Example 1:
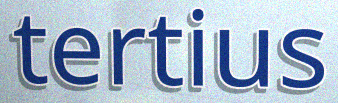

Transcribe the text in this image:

tertius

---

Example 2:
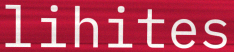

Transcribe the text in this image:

lihites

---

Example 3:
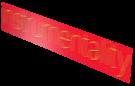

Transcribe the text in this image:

instrumentality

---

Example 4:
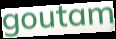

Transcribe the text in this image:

goutam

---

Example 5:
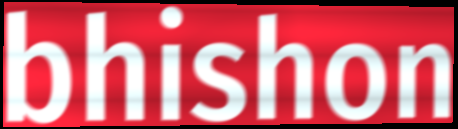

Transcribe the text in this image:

bhishon